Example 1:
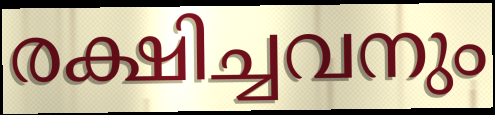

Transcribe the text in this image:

രക്ഷിച്ചവനും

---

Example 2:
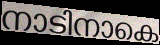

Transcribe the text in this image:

നാടിനാകെ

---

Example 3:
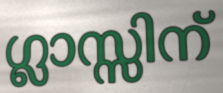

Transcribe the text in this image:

ഗ്ലാസ്സിന്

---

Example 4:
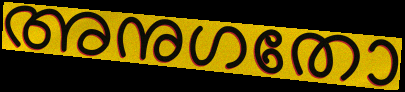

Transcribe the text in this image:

അനുഗതോ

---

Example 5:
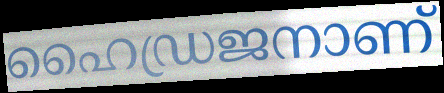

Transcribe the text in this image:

ഹൈഡ്രജനാണ്